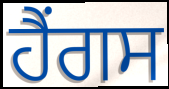
ਹੈਂਗਸ